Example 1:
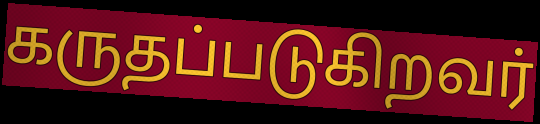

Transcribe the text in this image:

கருதப்படுகிறவர்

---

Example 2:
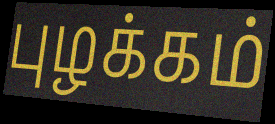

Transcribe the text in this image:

புழக்கம்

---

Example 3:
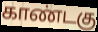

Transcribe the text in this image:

காண்டகு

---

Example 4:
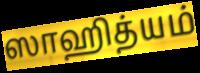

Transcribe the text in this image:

ஸாஹித்யம்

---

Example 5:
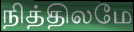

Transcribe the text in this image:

நித்திலமே